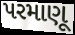
પરમાણૂ